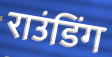
राउंडिंग